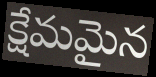
క్షేమమైన